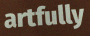
artfully